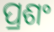
ପ୍ରଶଂ